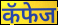
कॅफेज